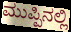
ಮುಪ್ಪಿನಲ್ಲಿ